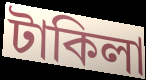
টাকিলা